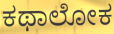
ಕಥಾಲೋಕ